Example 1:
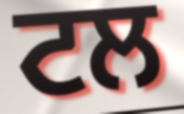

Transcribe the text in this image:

ਟਲ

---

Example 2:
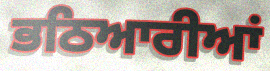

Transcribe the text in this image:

ਭਠਿਆਰੀਆਂ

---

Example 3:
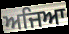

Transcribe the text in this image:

ਅਜਿਆ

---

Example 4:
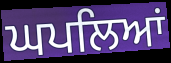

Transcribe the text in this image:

ਘਪਲਿਆਂ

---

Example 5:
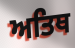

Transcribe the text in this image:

ਅਤਿਥ